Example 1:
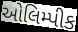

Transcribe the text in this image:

ઓલિમ્પીક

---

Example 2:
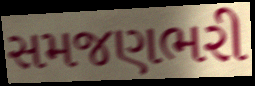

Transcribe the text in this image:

સમજણભરી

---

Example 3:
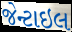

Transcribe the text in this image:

જેન્ટાઇલ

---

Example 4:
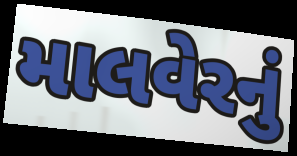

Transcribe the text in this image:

માલવેરનું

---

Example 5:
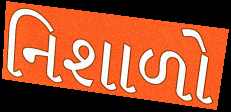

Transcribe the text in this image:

નિશાળો